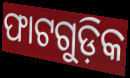
ଫାଟଗୁଡ଼ିକ